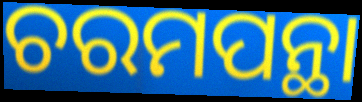
ଚରମପନ୍ଥା